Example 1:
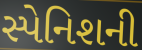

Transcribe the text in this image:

સ્પેનિશની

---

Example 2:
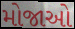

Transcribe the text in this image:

મોજાઓ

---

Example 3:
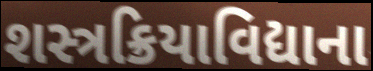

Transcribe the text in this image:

શસ્ત્રક્રિયાવિદ્યાના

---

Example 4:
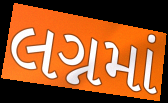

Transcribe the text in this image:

લગ્નમાં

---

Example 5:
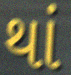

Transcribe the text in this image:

થાં